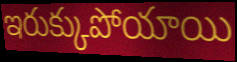
ఇరుక్కుపోయాయి